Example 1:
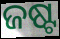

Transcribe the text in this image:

ଜଷ୍ଟ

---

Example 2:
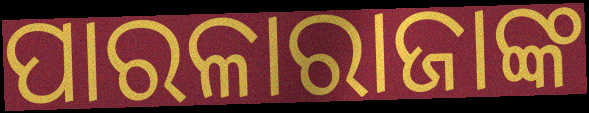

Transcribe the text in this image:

ପାରଳାରାଜାଙ୍କ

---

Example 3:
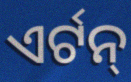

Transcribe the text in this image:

ଏର୍ଟନ୍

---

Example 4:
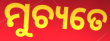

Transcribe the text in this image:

ମୁଚ୍ୟତେ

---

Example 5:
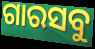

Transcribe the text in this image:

ଗାରସବୁ